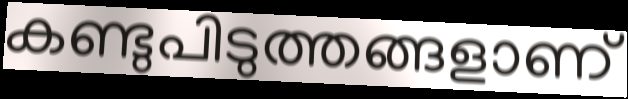
കണ്ടുപിടുത്തങ്ങളാണ്